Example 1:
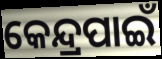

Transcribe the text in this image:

କେନ୍ଦ୍ରପାଇଁ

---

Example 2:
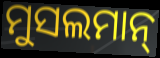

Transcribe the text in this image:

ମୁସଲମାନ୍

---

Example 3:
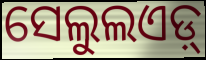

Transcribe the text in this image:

ସେଲୁଲଏଡ଼୍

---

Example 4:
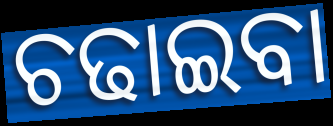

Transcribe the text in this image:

ଚଢାଇବା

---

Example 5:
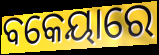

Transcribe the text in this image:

ବକେୟାରେ